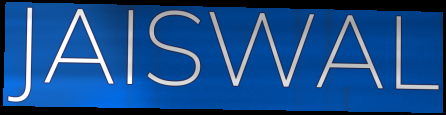
JAISWAL